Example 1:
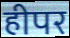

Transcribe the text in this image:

हीपर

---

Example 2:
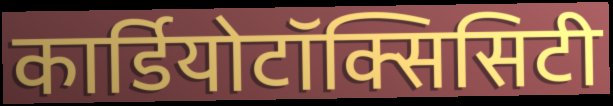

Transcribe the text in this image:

कार्डियोटॉक्सिसिटी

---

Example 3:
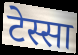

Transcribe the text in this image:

टेस्सा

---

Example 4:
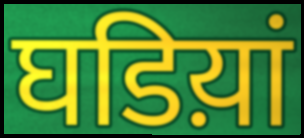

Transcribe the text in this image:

घडिय़ां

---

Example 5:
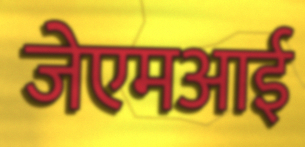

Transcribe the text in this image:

जेएमआई